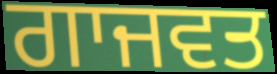
ਗਾਜਵਤ